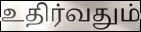
உதிர்வதும்